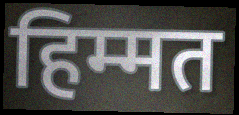
हिम्मत